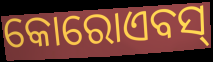
କୋରୋଏବସ୍